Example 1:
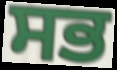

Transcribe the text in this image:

ਸਭ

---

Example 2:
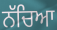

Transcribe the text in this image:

ਨੱਚਿਆ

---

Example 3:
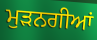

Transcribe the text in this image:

ਮੁੜਨਗੀਆਂ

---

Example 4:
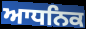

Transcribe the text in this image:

ਆਧਨਿਕ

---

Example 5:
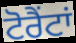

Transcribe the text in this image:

ਟੋਰੈਂਟਾਂ